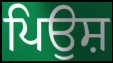
ਪਿਉਸ਼